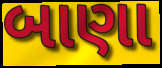
બાણા